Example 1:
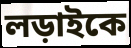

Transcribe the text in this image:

লড়াইকে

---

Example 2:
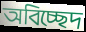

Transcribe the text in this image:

অবিচ্ছেদ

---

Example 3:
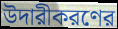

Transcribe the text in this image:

উদারীকরণের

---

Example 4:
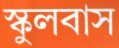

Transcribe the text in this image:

স্কুলবাস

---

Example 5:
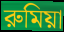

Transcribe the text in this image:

রুমিয়া